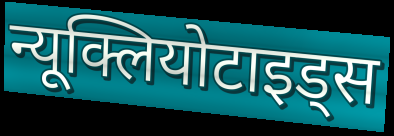
न्यूक्लियोटाइड्स